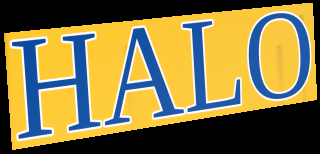
HALO